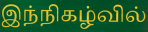
இந்நிகழ்வில்